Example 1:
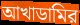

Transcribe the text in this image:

আখাডামির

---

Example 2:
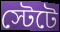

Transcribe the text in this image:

স্টেটে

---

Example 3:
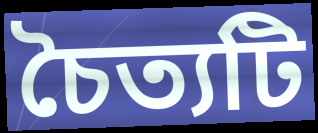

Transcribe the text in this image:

চৈত্যটি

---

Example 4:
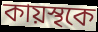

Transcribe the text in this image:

কায়স্থকে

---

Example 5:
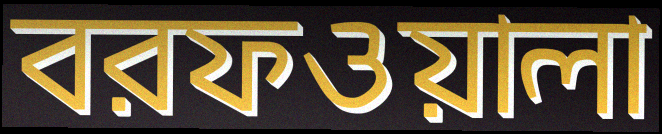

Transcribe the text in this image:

বরফওয়ালা